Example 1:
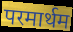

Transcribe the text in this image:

परमार्थम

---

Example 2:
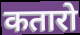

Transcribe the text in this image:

कतारो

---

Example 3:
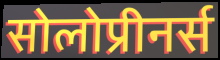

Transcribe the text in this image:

सोलोप्रीनर्स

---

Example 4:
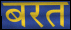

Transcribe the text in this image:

बरत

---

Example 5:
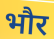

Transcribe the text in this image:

भौर